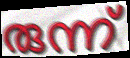
രുന്ന്